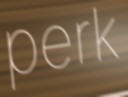
perk